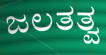
ಜಲತತ್ವ